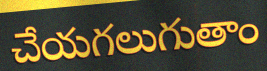
చేయగలుగుతాం